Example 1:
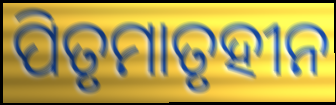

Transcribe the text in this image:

ପିତୃମାତୃହୀନ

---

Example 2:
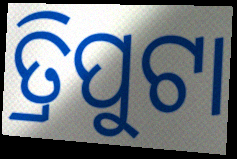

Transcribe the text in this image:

ତ୍ରିପୁଟା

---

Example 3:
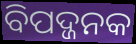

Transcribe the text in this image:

ବିପଦ୍ଜନକ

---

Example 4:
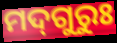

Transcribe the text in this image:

ମଦ୍‌ଗୁରୁଃ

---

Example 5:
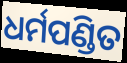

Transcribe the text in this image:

ଧର୍ମପଣ୍ଡିତ